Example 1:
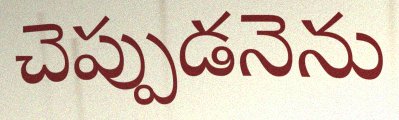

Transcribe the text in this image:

చెప్పుడనెను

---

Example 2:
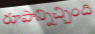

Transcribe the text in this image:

రూపాన్నిచ్చింది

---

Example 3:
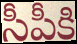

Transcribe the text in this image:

సీపీకి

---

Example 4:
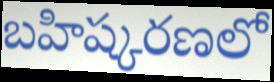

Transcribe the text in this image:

బహిష్కరణలో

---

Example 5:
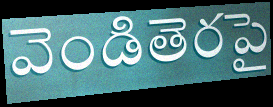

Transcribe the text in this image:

వెండితెరపై